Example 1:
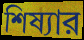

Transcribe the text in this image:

শিষ্যার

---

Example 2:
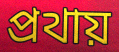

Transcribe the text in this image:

প্রথায়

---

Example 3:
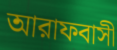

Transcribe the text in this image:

আরাফবাসী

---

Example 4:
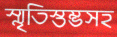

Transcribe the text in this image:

স্মৃতিস্তম্ভসহ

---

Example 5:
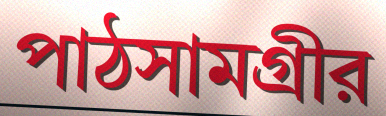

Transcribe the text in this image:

পাঠসামগ্রীর